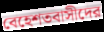
বেহেশতবাসীদের